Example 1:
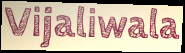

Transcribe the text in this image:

Vijaliwala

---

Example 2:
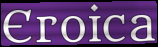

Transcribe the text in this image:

Eroica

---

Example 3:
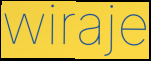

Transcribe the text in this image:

wiraje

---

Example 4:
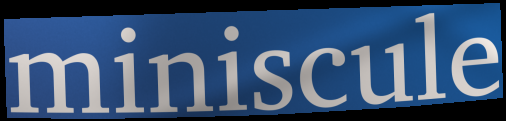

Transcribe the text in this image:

miniscule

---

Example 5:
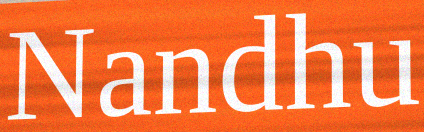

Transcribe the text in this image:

Nandhu